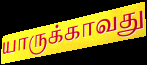
யாருக்காவது